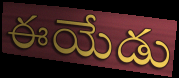
ఈయేడు